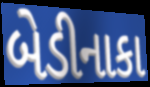
બેડીનાકા